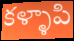
కళ్ళాపి